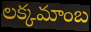
లక్కమాంబ